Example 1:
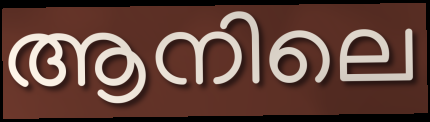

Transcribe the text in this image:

ആനിലെ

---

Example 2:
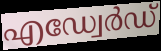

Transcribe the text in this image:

എഡ്വേർഡ്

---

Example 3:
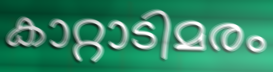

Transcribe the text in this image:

കാറ്റാടിമരം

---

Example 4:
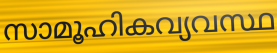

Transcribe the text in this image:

സാമൂഹികവ്യവസ്ഥ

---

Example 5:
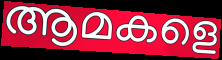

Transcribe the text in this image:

ആമകളെ